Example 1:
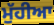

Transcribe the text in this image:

ਮੁੱਹੀਆ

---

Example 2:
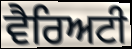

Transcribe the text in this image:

ਵੈਰਿਅਟੀ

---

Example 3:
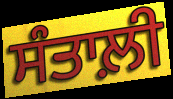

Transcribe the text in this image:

ਸੰਤਾਲ਼ੀ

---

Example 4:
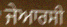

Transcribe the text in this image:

ਜੇਆਰਸੀ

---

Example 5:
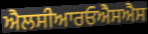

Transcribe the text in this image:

ਐਲਸੀਆਰਓਐਸਐਸ